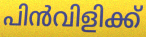
പിൻവിളിക്ക്